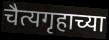
चैत्यगृहाच्या